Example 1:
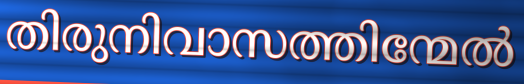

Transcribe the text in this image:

തിരുനിവാസത്തിന്മേൽ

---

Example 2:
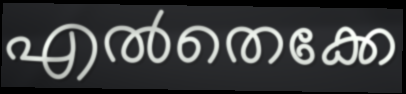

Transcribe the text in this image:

എൽതെക്കേ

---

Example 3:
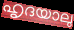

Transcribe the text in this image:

ഹൃദയാലു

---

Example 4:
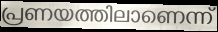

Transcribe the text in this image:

പ്രണയത്തിലാണെന്ന്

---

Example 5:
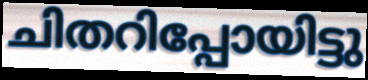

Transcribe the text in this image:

ചിതറിപ്പോയിട്ടു